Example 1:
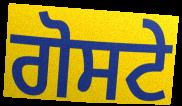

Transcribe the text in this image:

ਗੋਸਟੇ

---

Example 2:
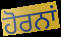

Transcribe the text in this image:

ਹੋਰਨਾਂ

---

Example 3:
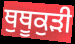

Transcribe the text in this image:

ਥੁਥੂਕੁੜੀ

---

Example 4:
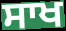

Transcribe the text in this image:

ਸਾਖ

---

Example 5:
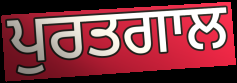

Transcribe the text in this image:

ਪੁਰਤਗਾਲ